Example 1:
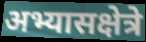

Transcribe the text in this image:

अभ्यासक्षेत्रे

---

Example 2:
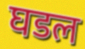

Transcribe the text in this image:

घडल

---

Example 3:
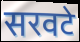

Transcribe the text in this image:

सरवटे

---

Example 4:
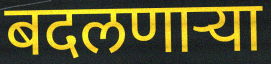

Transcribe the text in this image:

बदलणार्‍या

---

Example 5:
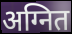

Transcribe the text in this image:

अग्नित